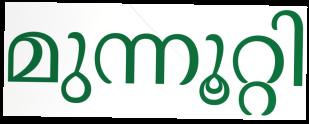
മുന്നൂറ്റി